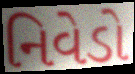
નિવેડો